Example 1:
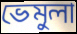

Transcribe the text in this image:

ভেমুলা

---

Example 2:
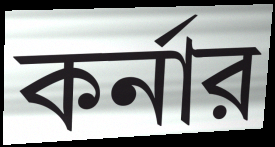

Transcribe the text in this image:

কর্নার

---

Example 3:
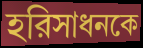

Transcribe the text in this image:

হরিসাধনকে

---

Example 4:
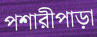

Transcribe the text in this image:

পশারীপাড়া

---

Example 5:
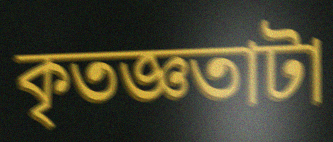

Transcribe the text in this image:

কৃতজ্ঞতাটা